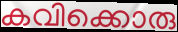
കവിക്കൊരു